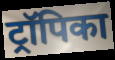
ट्रॉपिका